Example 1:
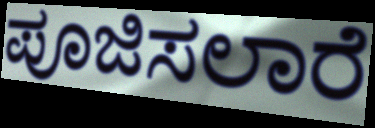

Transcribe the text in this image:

ಪೂಜಿಸಲಾರೆ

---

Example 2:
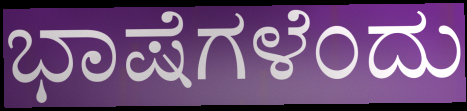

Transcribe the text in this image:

ಭಾಷೆಗಳೆಂದು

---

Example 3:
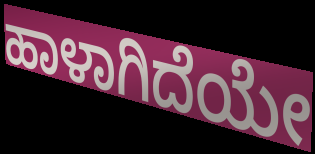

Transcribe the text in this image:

ಹಾಳಾಗಿದೆಯೇ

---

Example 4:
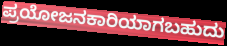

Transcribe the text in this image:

ಪ್ರಯೋಜನಕಾರಿಯಾಗಬಹುದು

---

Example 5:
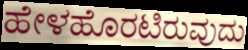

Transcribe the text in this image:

ಹೇಳಹೊರಟಿರುವುದು